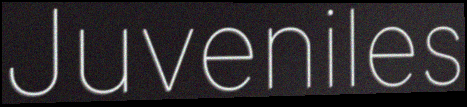
Juveniles